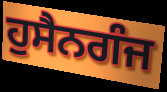
ਹੁਸੈਨਗੰਜ